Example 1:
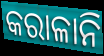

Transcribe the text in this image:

କରାଳାନି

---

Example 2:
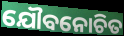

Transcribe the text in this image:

ଯୌବନୋଚିତ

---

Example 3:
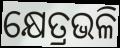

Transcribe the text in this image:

କ୍ଷେତ୍ରଭଳି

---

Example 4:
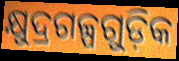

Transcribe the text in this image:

କ୍ଷୁଦ୍ରଗଳ୍ପଗୁଡ଼ିକ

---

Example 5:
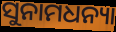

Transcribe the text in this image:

ସୁନାମଧନ୍ୟା